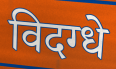
विदग्धे